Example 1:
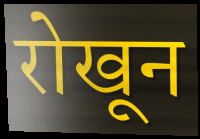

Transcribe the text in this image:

रोखून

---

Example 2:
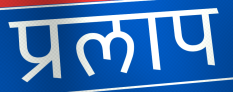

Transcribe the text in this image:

प्रलाप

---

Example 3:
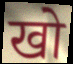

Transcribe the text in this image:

खो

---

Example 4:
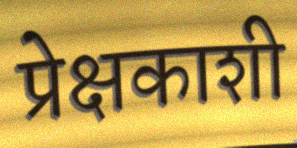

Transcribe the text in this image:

प्रेक्षकाशी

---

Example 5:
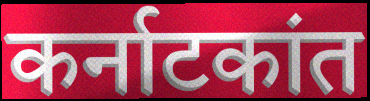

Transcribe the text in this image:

कर्नाटकांत